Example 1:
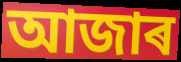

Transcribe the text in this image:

আজাৰ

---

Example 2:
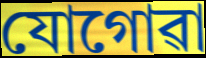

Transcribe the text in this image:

যোগোৱা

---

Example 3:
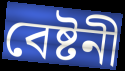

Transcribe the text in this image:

বেষ্টনী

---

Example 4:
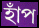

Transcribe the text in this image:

হাঁপ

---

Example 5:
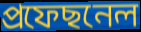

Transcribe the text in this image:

প্ৰফেছনেল